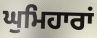
ਘੁਮਿਹਾਰਾਂ